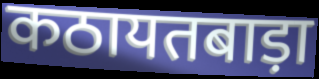
कठायतबाड़ा